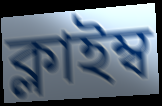
ক্লাইম্ব